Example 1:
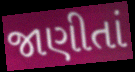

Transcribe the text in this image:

જાણીતાં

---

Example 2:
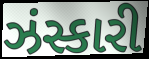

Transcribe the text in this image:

ઝંસ્કારી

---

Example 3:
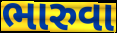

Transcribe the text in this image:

ભારુવા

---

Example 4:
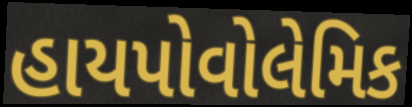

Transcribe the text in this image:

હાયપોવોલેમિક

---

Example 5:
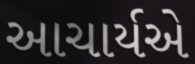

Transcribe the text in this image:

આચાર્યએ